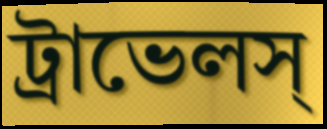
ট্রাভেলস্